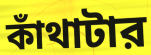
কাঁথাটার